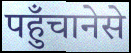
पहुँचानेसे